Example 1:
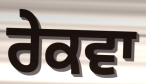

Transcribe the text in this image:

ਰੇਕਵਾ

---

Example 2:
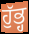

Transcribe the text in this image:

ਹੁੱਭ੍ਹ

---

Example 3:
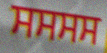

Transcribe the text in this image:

ਸਸਸਸ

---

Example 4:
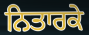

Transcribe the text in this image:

ਨਿਤਾਰਕੇ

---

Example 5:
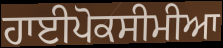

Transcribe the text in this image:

ਹਾਈਪੋਕਸੀਮੀਆ